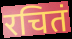
रचितं